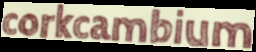
corkcambium